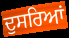
ਦੁਸਰਿਆਂ